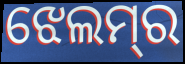
ଝେଲମ୍‌ର